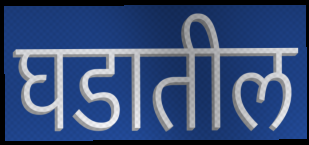
घडातील